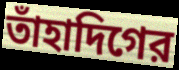
তাঁহাদিগের